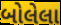
બોલેલા